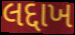
લદ્દાખ